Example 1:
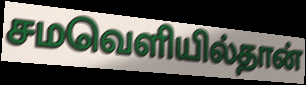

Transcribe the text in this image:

சமவெளியில்தான்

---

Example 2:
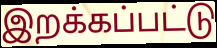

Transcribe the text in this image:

இறக்கப்பட்டு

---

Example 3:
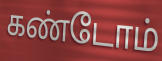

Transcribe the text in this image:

கண்டோம்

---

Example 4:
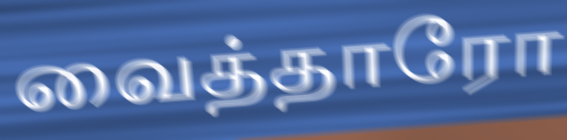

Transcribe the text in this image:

வைத்தாரோ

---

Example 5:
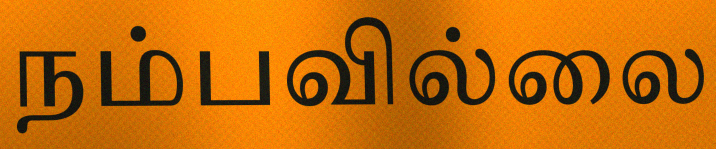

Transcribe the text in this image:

நம்பவில்லை